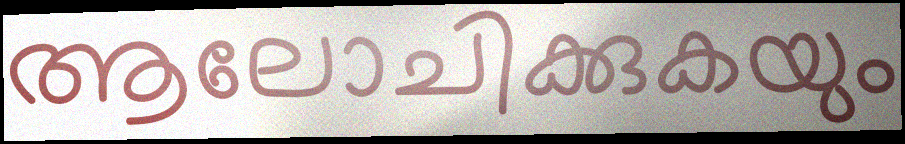
ആലോചിക്കുകയും